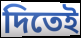
দিতেই